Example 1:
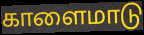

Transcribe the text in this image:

காளைமாடு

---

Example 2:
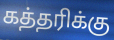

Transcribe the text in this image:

கத்தரிக்கு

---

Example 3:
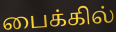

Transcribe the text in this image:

பைக்கில்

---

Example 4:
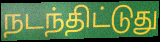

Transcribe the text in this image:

நடந்திட்டுது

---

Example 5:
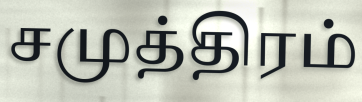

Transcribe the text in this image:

சமுத்திரம்